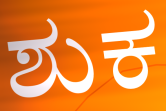
ಶುಕ